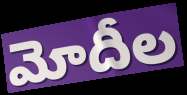
మోదీల